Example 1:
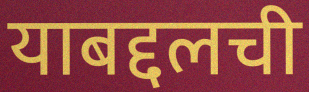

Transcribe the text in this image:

याबद्दलची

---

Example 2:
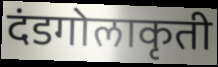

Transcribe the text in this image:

दंडगोलाकृती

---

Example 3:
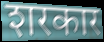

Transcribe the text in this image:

शरकार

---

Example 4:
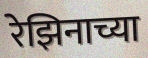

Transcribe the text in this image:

रेझिनाच्या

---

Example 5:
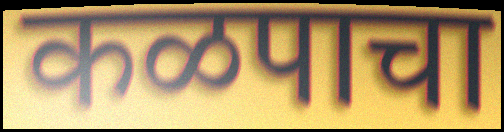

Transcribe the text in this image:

कळपाचा